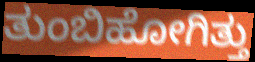
ತುಂಬಿಹೋಗಿತ್ತು